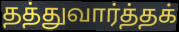
தத்துவார்த்தக்